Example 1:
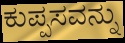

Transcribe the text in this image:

ಕುಪ್ಪಸವನ್ನು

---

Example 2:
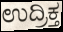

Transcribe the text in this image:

ಉದ್ರಿಕ್ತ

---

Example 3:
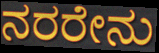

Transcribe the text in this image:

ನರರೇನು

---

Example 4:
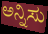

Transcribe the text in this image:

ಅನ್ನಿಸು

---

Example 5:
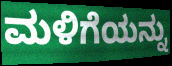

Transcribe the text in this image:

ಮಳಿಗೆಯನ್ನು